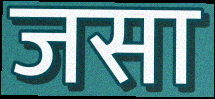
जसा